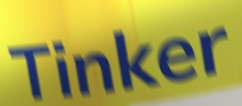
Tinker